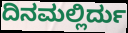
ದಿನಮಲ್ಲಿರ್ದು